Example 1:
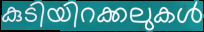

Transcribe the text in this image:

കുടിയിറക്കലുകൾ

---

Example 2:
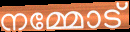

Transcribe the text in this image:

നമ്മോട്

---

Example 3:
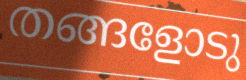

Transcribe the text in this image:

തങ്ങളോടു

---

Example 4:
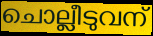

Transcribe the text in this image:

ചൊല്ലീടുവന്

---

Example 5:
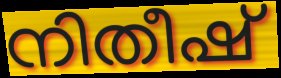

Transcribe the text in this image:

നിതീഷ്